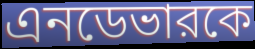
এনডেভারকে